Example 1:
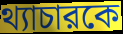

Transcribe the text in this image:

থ্যাচারকে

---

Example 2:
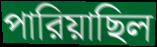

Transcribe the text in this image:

পারিয়াছিল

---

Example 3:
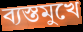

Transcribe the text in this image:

ব্যস্তমুখে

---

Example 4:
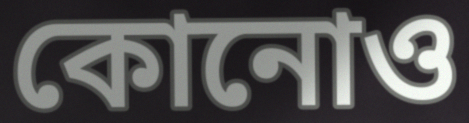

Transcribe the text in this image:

কোনোও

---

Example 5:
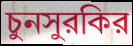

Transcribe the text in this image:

চুনসুরকির